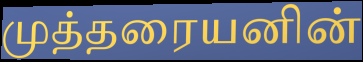
முத்தரையனின்